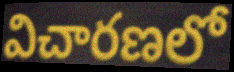
విచారణలో